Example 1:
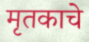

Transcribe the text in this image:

मृतकाचे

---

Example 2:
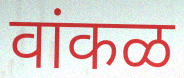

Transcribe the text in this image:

वांकळ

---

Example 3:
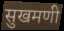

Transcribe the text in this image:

सुखमणी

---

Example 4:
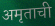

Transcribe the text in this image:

अमृताची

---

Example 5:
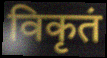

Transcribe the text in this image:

विकृतं